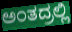
ಅಂತದ್ರಲ್ಲಿ